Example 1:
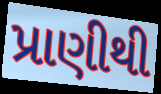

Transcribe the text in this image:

પ્રાણીથી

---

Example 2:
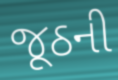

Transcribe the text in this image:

જૂઠની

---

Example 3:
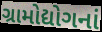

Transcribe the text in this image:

ગ્રામોદ્યોગનાં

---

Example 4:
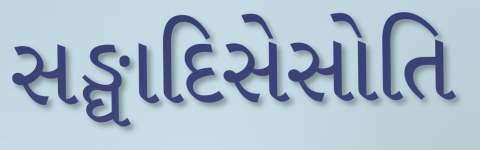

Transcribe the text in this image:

સઙ્ઘાદિસેસોતિ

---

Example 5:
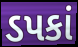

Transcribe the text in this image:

ડપકાં